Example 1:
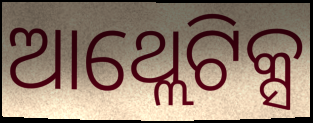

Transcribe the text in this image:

ଆଥ୍ଲେଟିକ୍ସ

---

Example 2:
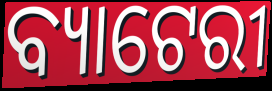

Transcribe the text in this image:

ବ୍ୟାଟେରୀ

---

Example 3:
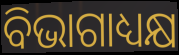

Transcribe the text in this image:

ବିଭାଗାଧ୍ୟକ୍ଷ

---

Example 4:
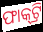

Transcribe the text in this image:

ଫାକ୍‍ଟ୍ରି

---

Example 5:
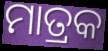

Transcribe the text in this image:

ମାତ୍ରକ